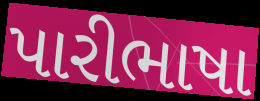
પારીભાષા